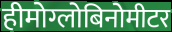
हीमोग्लोबिनोमीटर